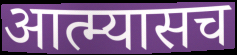
आत्म्यासच